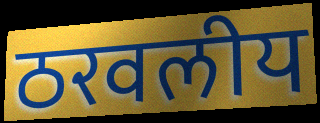
ठरवलीय